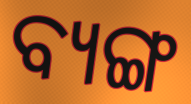
ବ୍ୟଙ୍ଗ